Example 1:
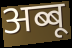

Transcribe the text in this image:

अब्बू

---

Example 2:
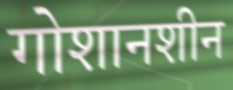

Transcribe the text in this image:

गोशानशीन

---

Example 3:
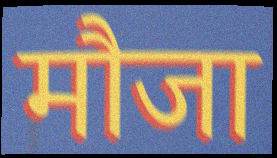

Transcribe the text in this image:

मौजा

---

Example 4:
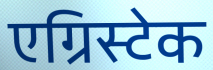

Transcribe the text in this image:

एग्रिस्टेक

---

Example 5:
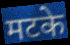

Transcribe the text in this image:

मटके